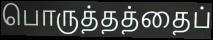
பொருத்தத்தைப்